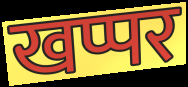
खप्पर